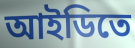
আইডিতে